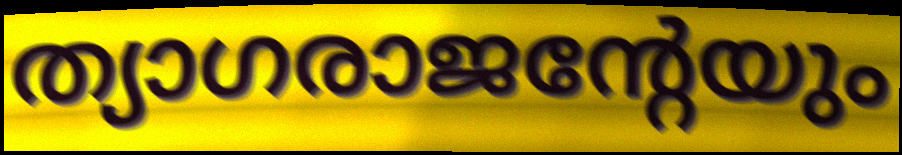
ത്യാഗരാജന്റേയും